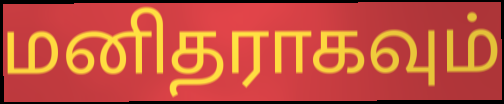
மனிதராகவும்